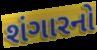
શંગારનો